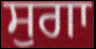
ਸੁਗਾ